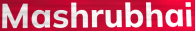
Mashrubhai